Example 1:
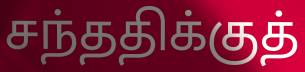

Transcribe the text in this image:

சந்ததிக்குத்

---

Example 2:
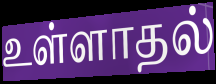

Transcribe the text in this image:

உள்ளாதல்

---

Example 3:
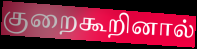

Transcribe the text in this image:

குறைகூறினால்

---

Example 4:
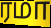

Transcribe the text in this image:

ரமா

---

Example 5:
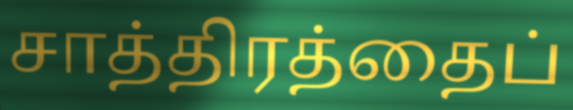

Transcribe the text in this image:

சாத்திரத்தைப்